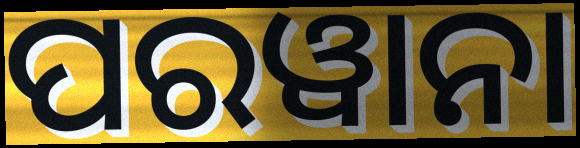
ପରୱାନା